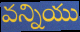
వన్నియు